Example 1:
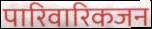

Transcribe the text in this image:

पारिवारिकजन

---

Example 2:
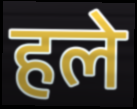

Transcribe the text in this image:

हले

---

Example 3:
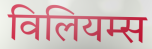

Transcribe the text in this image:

विलियम्‍स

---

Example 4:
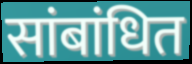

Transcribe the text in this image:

सांबांधित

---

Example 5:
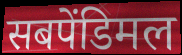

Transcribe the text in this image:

सबपेंडिमल